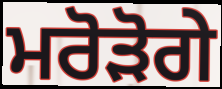
ਮਰੋੜੋਗੇ